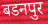
बडनपुर